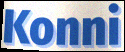
Konni